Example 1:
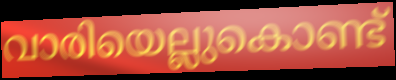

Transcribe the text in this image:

വാരിയെല്ലുകൊണ്ട്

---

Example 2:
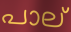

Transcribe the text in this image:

പാല്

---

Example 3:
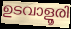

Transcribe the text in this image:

ഉടവാളൂരി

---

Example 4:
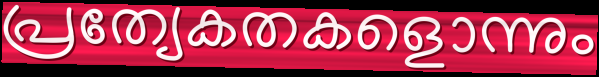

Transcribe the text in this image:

പ്രത്യേകതകളൊന്നും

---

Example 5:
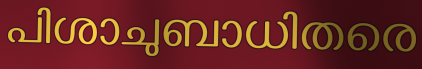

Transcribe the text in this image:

പിശാചുബാധിതരെ